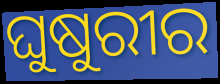
ଘୁଷୁରୀର